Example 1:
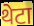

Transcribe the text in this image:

थेटा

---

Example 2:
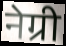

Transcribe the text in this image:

नेग्री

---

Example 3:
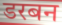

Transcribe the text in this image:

डरबन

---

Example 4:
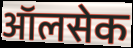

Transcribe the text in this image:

ऑलसेक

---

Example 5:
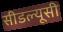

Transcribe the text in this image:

सीडल्यूसी